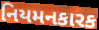
નિયમનકારક